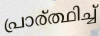
പ്രാര്ത്ഥിച്ച്